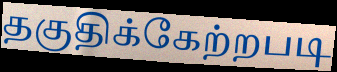
தகுதிக்கேற்றபடி